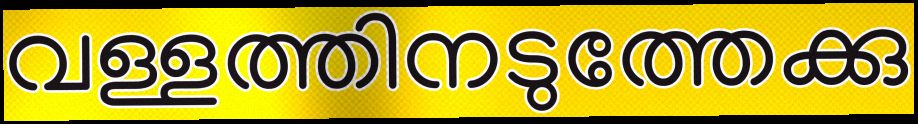
വള്ളത്തിനടുത്തേക്കു